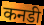
कनडी